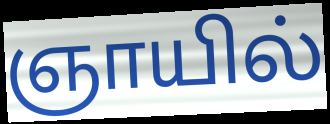
ஞாயில்